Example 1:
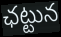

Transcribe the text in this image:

ఛట్టున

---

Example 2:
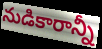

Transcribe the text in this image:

నుడికారాన్నీ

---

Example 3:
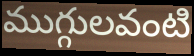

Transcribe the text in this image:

ముగ్గులవంటి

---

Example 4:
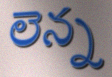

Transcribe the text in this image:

లెన్న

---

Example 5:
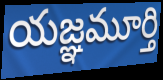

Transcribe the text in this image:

యజ్ఞమూర్తి